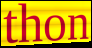
thon